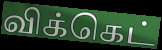
விக்கெட்